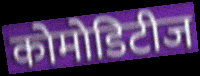
कोमोडिटीज